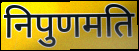
निपुणमति